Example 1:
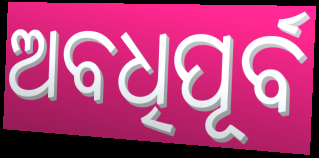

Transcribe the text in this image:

ଅବଧିପୂର୍ବ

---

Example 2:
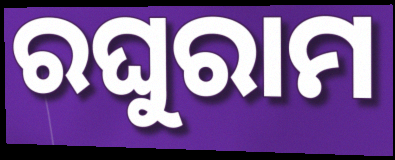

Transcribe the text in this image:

ରଘୁରାମ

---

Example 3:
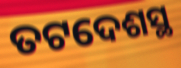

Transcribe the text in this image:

ତଟଦେଶସ୍ଥ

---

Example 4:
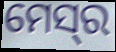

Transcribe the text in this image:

ମେସ୍‍ର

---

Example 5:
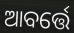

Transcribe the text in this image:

ଆବର୍ତ୍ତେ